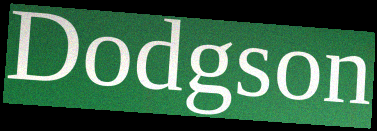
Dodgson